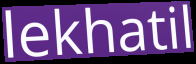
lekhatil